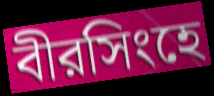
বীরসিংহে